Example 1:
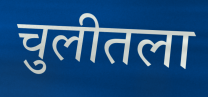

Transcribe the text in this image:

चुलीतला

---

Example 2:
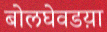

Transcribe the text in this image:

बोलघेवडय़ा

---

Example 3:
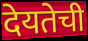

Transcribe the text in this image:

देयतेची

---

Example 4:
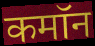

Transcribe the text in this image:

कमॉन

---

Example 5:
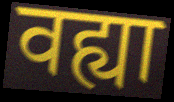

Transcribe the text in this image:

वह्या